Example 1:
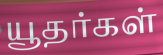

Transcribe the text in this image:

யூதர்கள்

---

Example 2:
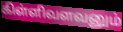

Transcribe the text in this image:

கிள்ளிவளவனும்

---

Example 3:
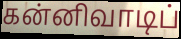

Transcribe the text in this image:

கன்னிவாடிப்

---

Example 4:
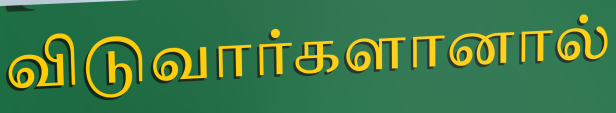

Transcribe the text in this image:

விடுவார்களானால்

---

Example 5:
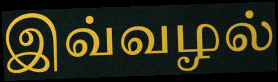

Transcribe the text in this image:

இவ்வழல்